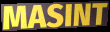
MASINT